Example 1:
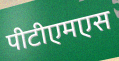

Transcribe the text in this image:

पीटीएमएस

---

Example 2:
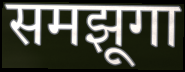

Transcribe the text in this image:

समझूगा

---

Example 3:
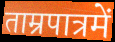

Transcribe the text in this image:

ताम्रपात्रमें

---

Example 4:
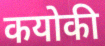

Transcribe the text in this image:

कयोकी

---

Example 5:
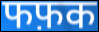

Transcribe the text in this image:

फफ़क